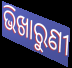
ଭିଖାରୁଣୀ